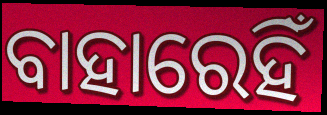
ବାହାରେହିଁ